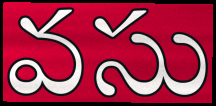
వసు